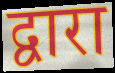
द्वारा